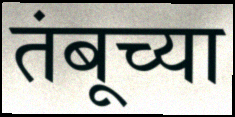
तंबूच्या